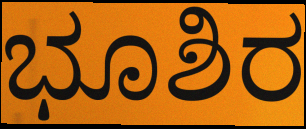
ಭೂಶಿರ